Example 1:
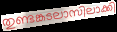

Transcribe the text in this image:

തുണ്ടങ്കടലാസിലാക്കി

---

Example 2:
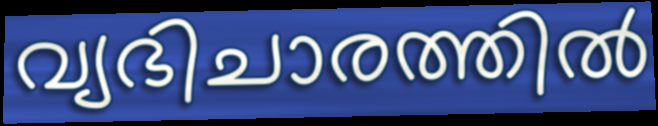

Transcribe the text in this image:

വ്യഭിചാരത്തിൽ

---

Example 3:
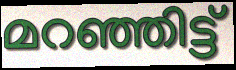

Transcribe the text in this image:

മറഞ്ഞിട്ട്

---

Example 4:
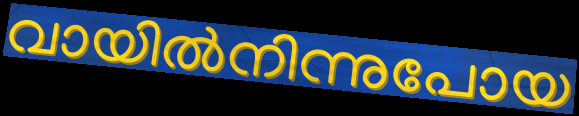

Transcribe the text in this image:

വായിൽനിന്നുപോയ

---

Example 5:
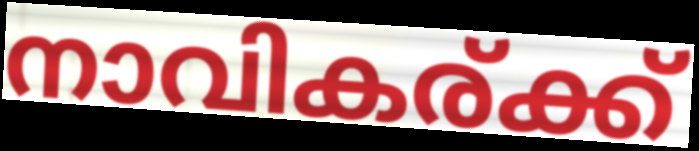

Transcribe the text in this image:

നാവികര്ക്ക്